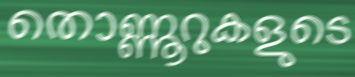
തൊണ്ണൂറുകളുടെ